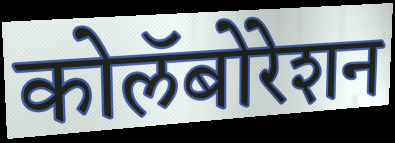
कोलॅबोरेशन